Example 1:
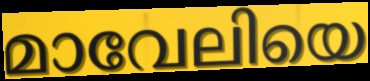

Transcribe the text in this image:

മാവേലിയെ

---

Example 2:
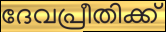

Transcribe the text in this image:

ദേവപ്രീതിക്ക്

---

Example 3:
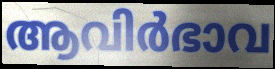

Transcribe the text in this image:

ആവിർഭാവ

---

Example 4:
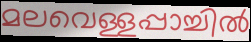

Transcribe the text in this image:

മലവെള്ളപ്പാച്ചിൽ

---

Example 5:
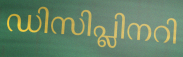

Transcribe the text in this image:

ഡിസിപ്ലിനറി